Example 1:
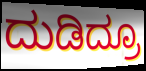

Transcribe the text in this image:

ದುಡಿದ್ರೂ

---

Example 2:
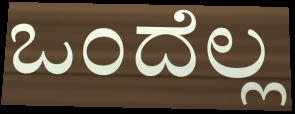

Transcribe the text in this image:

ಒಂದೆಲ್ಲ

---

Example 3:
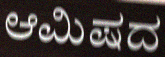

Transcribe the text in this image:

ಆಮಿಷದ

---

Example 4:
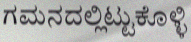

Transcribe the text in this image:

ಗಮನದಲ್ಲಿಟ್ಟುಕೊಳ್ಳಿ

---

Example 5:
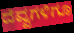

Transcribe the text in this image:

ದೆವ್ವಗಳಿಗೂ